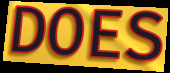
DOES